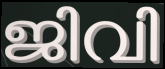
ജിവി